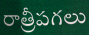
రాత్రీపగలు